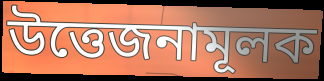
উত্তেজনামূলক